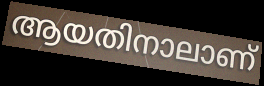
ആയതിനാലാണ്